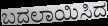
ಬದಲಾಯಿಸಿದ